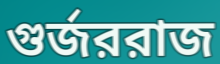
গুর্জররাজ